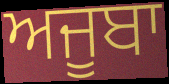
ਅਜੂਬਾ